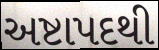
અષ્ટાપદથી